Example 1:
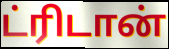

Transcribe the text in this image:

ட்ரிடான்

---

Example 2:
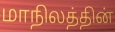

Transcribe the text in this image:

மாநிலத்தின்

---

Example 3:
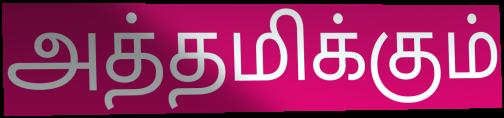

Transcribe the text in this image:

அத்தமிக்கும்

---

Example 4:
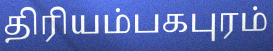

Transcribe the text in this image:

திரியம்பகபுரம்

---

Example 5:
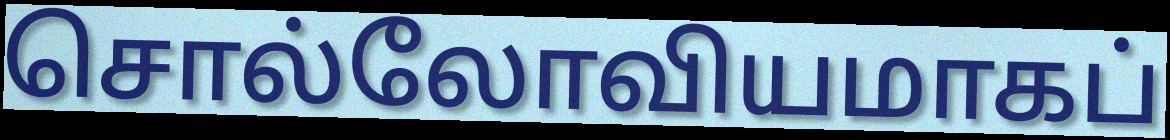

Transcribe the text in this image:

சொல்லோவியமாகப்